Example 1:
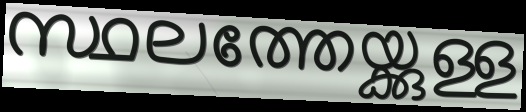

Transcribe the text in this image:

സ്ഥലത്തേയ്ക്കുള്ള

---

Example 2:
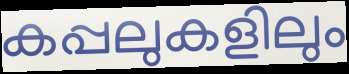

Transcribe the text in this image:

കപ്പലുകളിലും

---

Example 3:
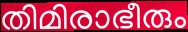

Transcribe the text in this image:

തിമിരാഭീരും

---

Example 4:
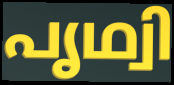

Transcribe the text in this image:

പൃഥ്വി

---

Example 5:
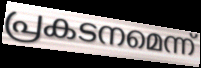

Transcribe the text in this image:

പ്രകടനമെന്ന്